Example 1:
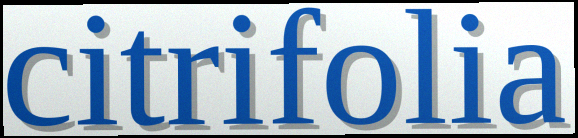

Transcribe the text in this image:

citrifolia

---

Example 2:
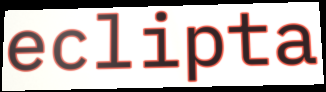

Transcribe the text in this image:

eclipta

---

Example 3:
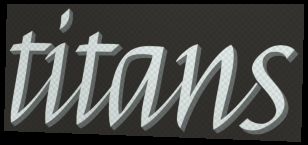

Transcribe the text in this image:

titans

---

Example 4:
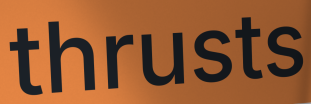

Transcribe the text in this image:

thrusts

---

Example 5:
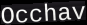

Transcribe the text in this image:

Occhav